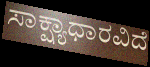
ಸಾಕ್ಷ್ಯಾಧಾರವಿದೆ